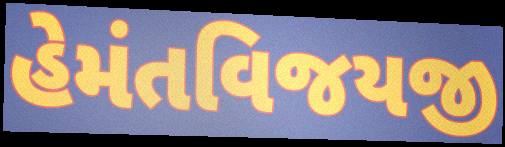
હેમંતવિજયજી